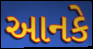
આનકે